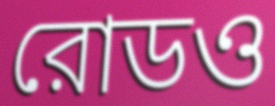
রোডও